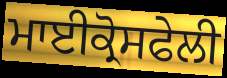
ਮਾਈਕ੍ਰੋਸਫੇਲੀ